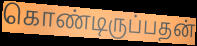
கொண்டிருப்பதன்